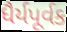
ધૈર્યપૂર્વક